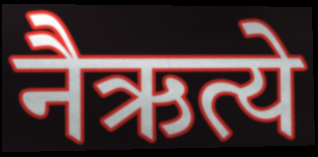
नैऋत्ये